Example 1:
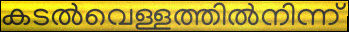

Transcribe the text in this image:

കടൽവെള്ളത്തിൽനിന്ന്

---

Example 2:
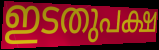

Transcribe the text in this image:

ഇടതുപക്ഷ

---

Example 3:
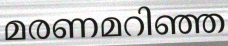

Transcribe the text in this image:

മരണമറിഞ്ഞ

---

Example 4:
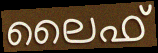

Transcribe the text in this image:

ലൈഫ്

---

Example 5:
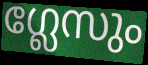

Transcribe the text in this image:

ഗ്ലേസും